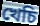
খেচি